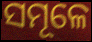
ସମୂଳେ